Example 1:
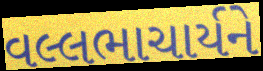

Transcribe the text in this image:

વલ્લભાચાર્યને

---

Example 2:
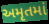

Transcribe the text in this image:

અમૃતમાં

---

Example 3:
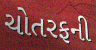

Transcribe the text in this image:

ચોતરફની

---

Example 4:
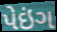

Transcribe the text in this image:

પેઇંગ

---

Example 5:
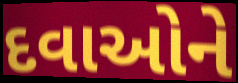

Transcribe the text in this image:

દવાઓને